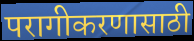
परागीकरणासाठी